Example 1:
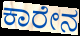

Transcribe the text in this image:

ಕಾರೇನ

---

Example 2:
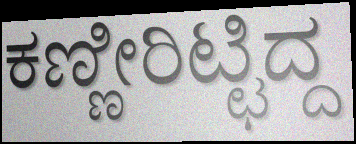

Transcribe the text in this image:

ಕಣ್ಣೀರಿಟ್ಟಿದ್ದ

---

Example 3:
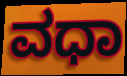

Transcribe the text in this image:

ವಧಾ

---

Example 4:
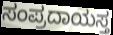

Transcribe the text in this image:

ಸಂಪ್ರದಾಯಸ್ತ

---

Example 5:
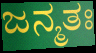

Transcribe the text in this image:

ಜನ್ಮತಃ